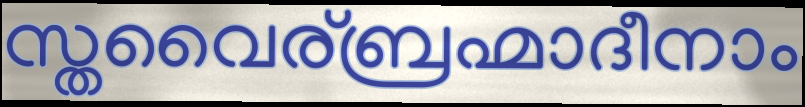
സ്തവൈര്ബ്രഹ്മാദീനാം